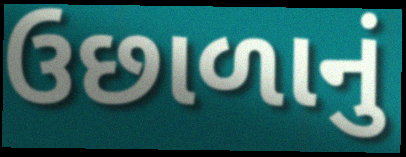
ઉછાળાનું